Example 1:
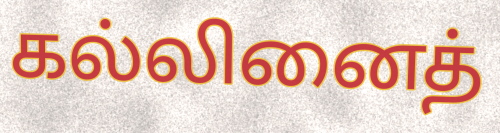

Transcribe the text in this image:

கல்லினைத்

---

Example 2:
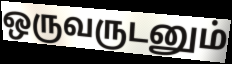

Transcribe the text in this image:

ஒருவருடனும்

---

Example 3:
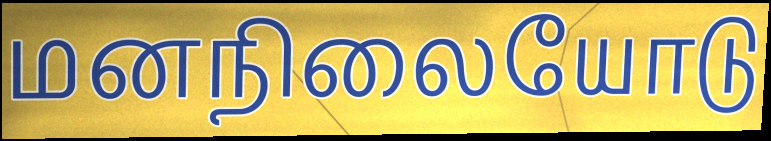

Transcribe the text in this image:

மனநிலையோடு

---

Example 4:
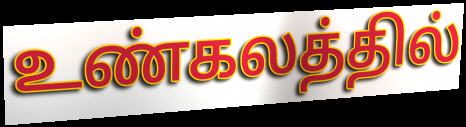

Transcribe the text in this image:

உண்கலத்தில்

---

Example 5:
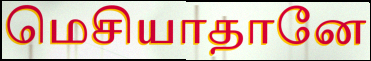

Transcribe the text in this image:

மெசியாதானே